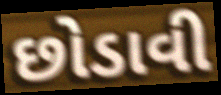
છોડાવી